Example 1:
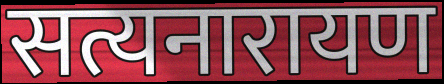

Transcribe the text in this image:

सत्यनारायण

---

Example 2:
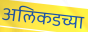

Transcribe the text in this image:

अलिकडच्या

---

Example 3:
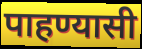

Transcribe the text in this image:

पाहण्यासी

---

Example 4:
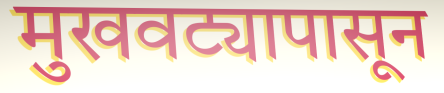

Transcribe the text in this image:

मुखवट्यापासून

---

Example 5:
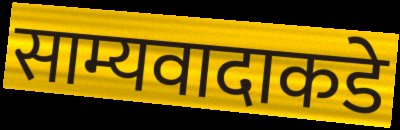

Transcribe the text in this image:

साम्यवादाकडे